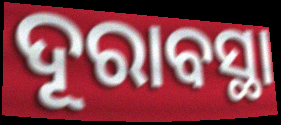
ଦୂରାବସ୍ଥା